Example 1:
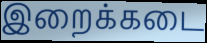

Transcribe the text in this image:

இறைக்கடை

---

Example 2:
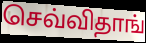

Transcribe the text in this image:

செவ்விதாங்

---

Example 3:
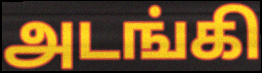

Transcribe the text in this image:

அடங்கி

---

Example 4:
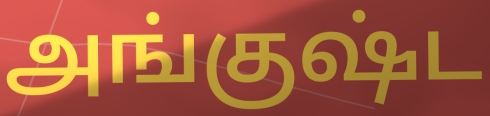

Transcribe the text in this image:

அங்குஷ்ட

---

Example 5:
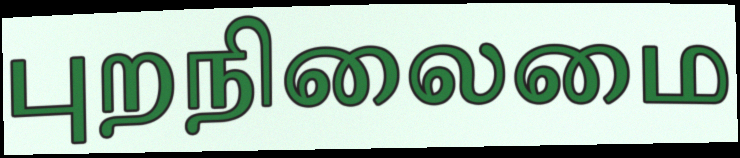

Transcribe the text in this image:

புறநிலைமை